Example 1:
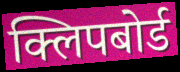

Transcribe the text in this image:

क्लिपबोर्ड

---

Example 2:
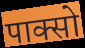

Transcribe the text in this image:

पाक्सो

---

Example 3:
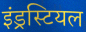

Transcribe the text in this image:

इंड्रस्टियल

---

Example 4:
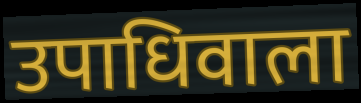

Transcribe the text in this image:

उपाधिवाला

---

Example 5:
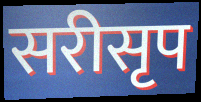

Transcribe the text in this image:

सरीसृप